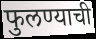
फुलण्याची